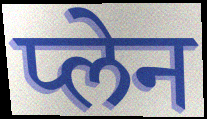
प्लेन